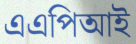
এএপিআই